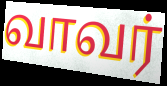
வாவர்